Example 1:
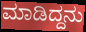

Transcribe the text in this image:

ಮಾಡಿದ್ದನು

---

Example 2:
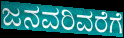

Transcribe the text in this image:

ಜನವರಿವರೆಗೆ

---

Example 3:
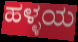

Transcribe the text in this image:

ಹಳ್ಳಯ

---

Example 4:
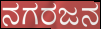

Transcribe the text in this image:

ನಗರಜನ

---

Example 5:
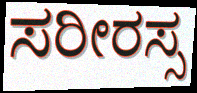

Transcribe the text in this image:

ಸರೀರಸ್ಸ